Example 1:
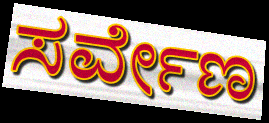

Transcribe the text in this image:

ಸರ್ವೇಣ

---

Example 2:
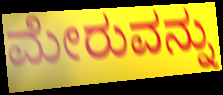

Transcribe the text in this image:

ಮೇರುವನ್ನು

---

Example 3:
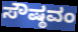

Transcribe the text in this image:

ಸೌಷ್ಠವಂ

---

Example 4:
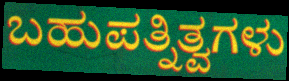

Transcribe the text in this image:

ಬಹುಪತ್ನಿತ್ವಗಳು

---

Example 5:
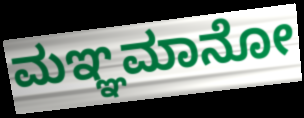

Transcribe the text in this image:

ಮಞ್ಞಮಾನೋ